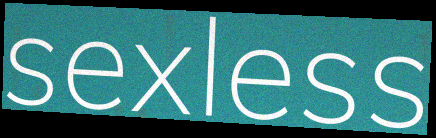
sexless